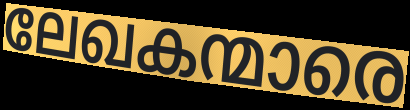
ലേഖകന്മാരെ